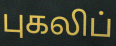
புகலிப்